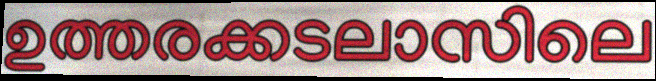
ഉത്തരക്കടലാസിലെ